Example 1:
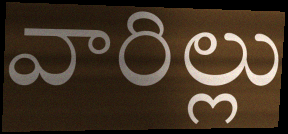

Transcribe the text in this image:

వారిల్లు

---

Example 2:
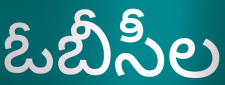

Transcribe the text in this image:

ఓబీసీల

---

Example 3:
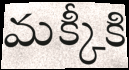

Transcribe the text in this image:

మక్కీకి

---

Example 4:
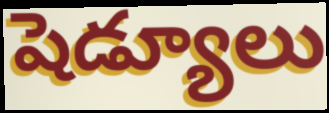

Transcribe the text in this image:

షెడ్యూలు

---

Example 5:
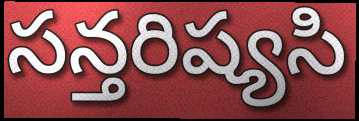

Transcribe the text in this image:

సన్తరిష్యసి